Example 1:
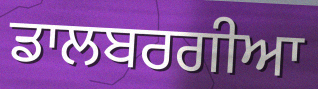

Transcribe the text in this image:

ਡਾਲਬਰਗੀਆ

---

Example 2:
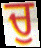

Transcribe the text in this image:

ਚੁ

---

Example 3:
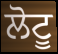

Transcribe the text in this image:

ਲੋਟੂ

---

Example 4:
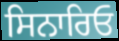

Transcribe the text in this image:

ਸਿਨਾਰਿਓ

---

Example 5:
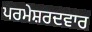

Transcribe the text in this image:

ਪਰਮੇਸ਼ਰਦਵਾਰ